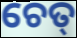
ଚେତ୍